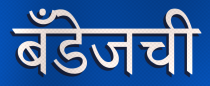
बँडेजची